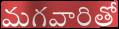
మగవారితో